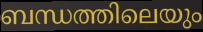
ബന്ധത്തിലെയും